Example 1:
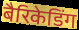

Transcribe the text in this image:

बैरिकेडिंग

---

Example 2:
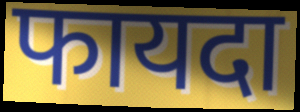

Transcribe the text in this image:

फायदा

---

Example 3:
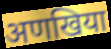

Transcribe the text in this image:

अणखिया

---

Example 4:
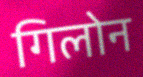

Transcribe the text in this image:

गिलोन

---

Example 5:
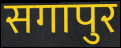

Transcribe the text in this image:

सगापुर